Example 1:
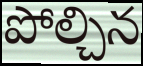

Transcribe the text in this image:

పోల్చిన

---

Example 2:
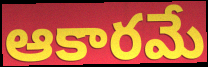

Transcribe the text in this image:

ఆకారమే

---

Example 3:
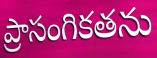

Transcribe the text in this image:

ప్రాసంగికతను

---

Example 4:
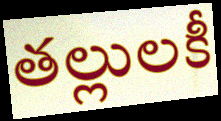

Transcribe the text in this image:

తల్లులకీ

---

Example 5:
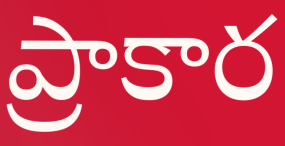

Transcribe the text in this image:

ప్రాకార